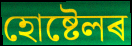
হোষ্টেলৰ